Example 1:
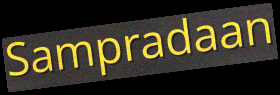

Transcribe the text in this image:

Sampradaan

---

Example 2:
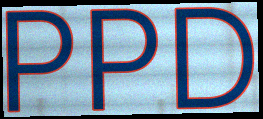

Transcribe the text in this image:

PPD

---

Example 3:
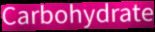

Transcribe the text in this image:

Carbohydrate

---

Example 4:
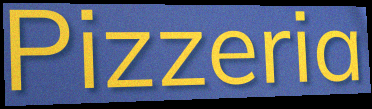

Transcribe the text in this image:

Pizzeria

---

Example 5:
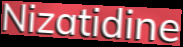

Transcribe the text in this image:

Nizatidine